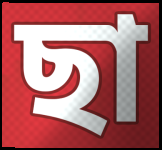
ছা